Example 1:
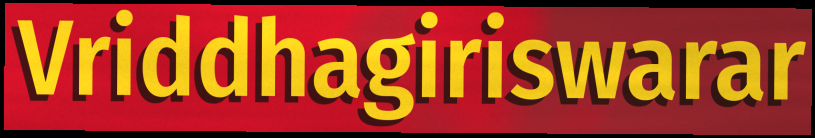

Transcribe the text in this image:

Vriddhagiriswarar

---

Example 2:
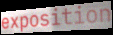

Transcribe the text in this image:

exposition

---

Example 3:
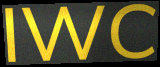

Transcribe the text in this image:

IWC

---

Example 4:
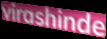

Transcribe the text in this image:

virashinde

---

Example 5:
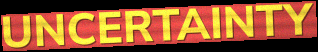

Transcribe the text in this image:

UNCERTAINTY